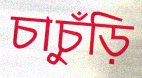
চাচুঁড়ি